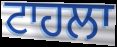
ਟਾਹਲਾ